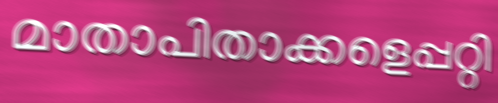
മാതാപിതാക്കളെപ്പറ്റി